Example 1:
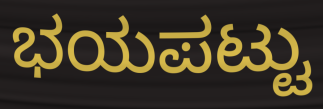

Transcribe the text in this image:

ಭಯಪಟ್ಟು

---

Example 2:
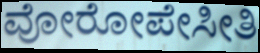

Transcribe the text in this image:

ವೋರೋಪೇಸೀತಿ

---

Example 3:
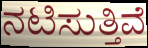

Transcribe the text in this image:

ನಟಿಸುತ್ತಿವೆ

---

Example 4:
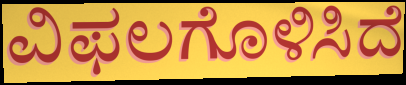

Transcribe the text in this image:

ವಿಫಲಗೊಳಿಸಿದೆ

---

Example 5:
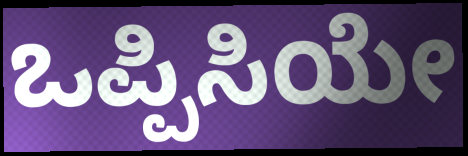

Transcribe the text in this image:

ಒಪ್ಪಿಸಿಯೇ